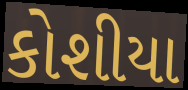
કોશીયા